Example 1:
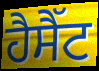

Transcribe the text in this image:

ਹੈਸੈੱਟ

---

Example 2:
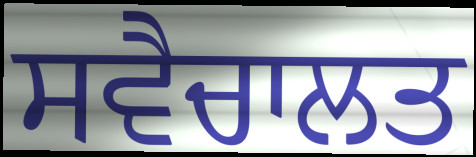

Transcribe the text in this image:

ਸਵੈਚਾਲਤ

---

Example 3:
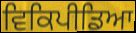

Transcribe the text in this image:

ਵਿਕਿਪੀਡਿਆ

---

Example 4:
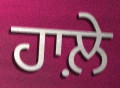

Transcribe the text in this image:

ਹਾਲ਼ੇ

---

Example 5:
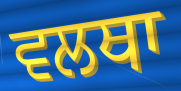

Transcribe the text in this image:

ਵਲਥਾ